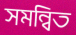
সমন্বিত